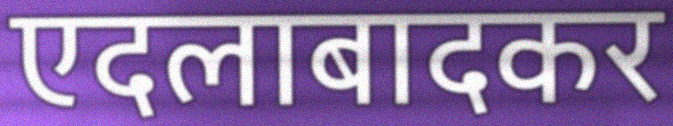
एदलाबादकर